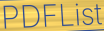
PDFList